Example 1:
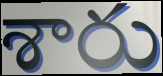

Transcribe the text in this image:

శారు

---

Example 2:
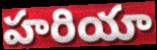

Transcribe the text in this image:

హరియా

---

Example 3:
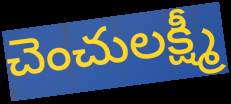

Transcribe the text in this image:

చెంచులక్ష్మీ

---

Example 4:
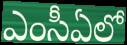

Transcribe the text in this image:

ఎంసీఏలో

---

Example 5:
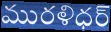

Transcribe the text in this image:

మురళిధర్